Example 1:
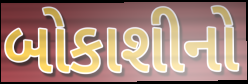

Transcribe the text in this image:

બોકાશીનો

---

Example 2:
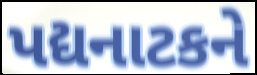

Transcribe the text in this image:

પદ્યનાટકને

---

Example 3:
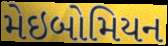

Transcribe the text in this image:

મેઇબોમિયન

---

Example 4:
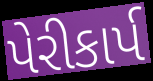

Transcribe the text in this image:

પેરીકાર્પ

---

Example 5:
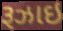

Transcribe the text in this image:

રૂઝાઇ